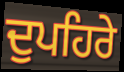
ਦੁਪਹਿਰੇ